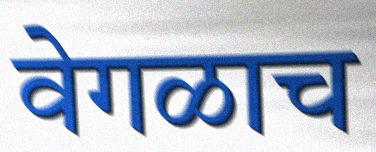
वेगळाच